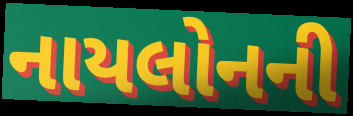
નાયલોનની